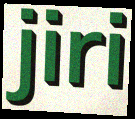
jiri